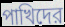
পাখিদের